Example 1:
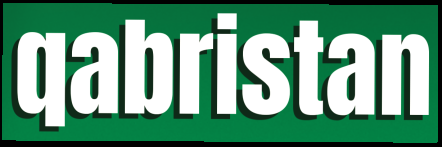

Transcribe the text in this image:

qabristan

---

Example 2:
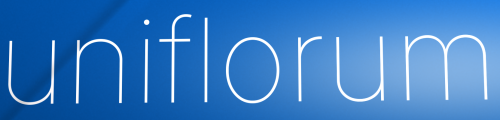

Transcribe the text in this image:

uniflorum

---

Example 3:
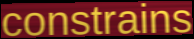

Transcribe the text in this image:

constrains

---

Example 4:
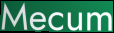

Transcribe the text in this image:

Mecum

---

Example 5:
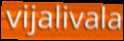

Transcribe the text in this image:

vijalivala